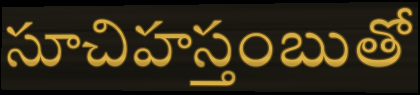
సూచిహస్తంబుతో